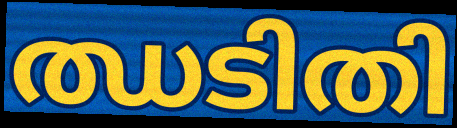
ഝടിതി